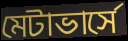
মেটাভার্সে